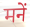
मनें